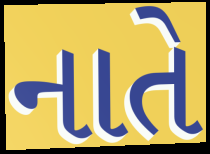
નાતે